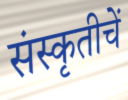
संस्कृतीचें